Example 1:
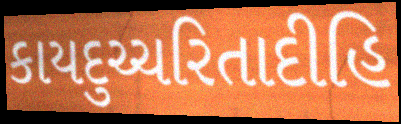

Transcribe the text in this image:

કાયદુચ્ચરિતાદીહિ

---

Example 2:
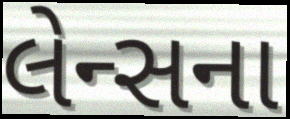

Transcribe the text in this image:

લેન્સના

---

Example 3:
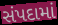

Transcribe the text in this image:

સંપદામાં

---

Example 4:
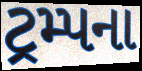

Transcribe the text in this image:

ટ્રમ્પના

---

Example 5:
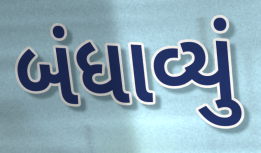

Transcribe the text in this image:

બંધાવ્યું